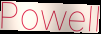
Powell